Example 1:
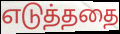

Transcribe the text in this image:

எடுத்ததை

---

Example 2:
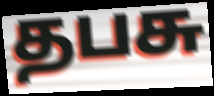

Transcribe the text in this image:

தபசு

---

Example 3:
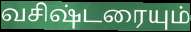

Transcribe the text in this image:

வசிஷ்டரையும்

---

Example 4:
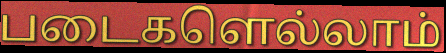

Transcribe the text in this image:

படைகளெல்லாம்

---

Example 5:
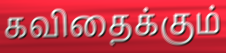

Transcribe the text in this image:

கவிதைக்கும்